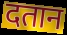
दतान